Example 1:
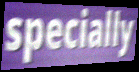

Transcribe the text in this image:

specially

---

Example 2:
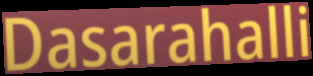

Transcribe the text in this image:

Dasarahalli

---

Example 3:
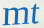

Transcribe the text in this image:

mt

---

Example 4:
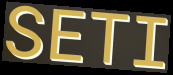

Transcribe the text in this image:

SETI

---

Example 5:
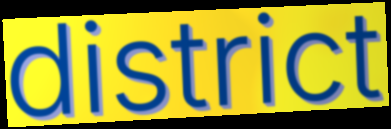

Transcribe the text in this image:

district